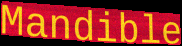
Mandible